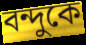
বন্দুকে